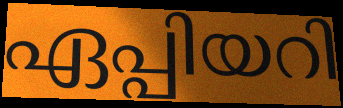
ഏപ്പിയറി